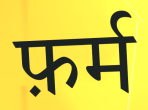
फ़र्म